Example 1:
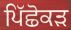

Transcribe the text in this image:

ਪਿੱਛੋਕੜ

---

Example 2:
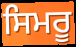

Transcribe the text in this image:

ਸਿਮਰੂ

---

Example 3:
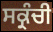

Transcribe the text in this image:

ਸਕ੍ਰੰਚੀ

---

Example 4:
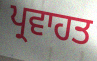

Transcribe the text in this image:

ਪ੍ਰਵਾਹਤ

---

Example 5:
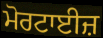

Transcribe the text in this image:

ਮੋਰਟਾਈਜ਼